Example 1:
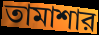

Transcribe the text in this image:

তামাশার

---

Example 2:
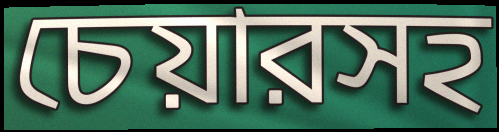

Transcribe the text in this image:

চেয়ারসহ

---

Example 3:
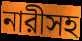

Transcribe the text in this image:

নারীসহ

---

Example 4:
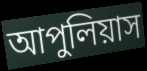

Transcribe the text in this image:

আপুলিয়াস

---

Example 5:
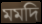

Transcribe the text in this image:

মমদি